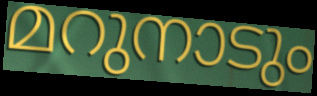
മറുനാടും